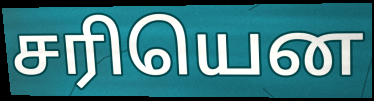
சரியென